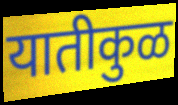
यातीकुळ